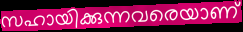
സഹായിക്കുന്നവരെയാണ്